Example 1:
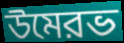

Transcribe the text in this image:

উমেরভ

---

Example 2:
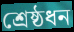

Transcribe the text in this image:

শ্রেষ্ঠধন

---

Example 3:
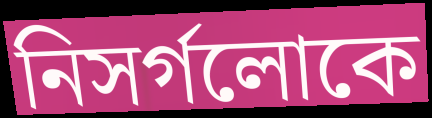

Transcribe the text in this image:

নিসর্গলোকে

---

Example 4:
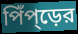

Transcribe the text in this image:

পিঁপ্ড়ের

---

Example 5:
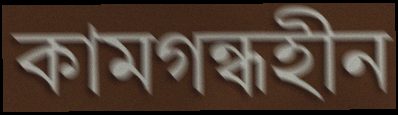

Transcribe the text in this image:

কামগন্ধহীন